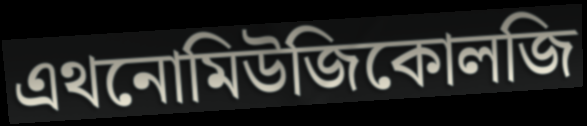
এথনোমিউজিকোলজি